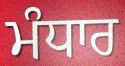
ਮੰਧਾਰ